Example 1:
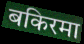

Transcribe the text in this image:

बकिरमा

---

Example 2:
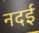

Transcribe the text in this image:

नदई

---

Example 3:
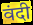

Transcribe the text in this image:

वंदी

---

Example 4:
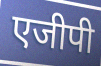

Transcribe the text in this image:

एजीपी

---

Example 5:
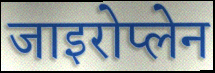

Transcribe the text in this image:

जाइरोप्लेन